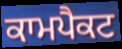
ਕਾਮਪੈਕਟ